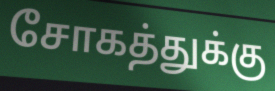
சோகத்துக்கு